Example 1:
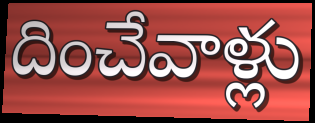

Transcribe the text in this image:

దించేవాళ్లు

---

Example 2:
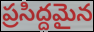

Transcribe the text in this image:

ప్రసిద్దమైన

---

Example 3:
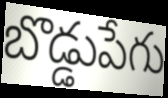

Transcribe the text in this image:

బొడ్డుపేగు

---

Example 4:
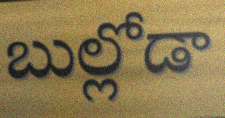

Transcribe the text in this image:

బుల్లోడా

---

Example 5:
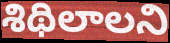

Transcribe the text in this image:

శిథిలాలని